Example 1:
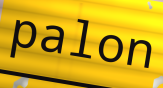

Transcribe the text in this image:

palon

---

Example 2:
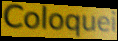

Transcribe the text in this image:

Coloquei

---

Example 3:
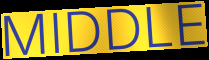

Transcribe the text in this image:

MIDDLE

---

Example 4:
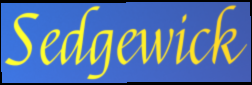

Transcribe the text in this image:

Sedgewick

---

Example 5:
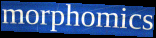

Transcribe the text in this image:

morphomics